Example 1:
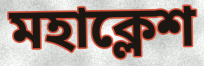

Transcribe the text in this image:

মহাক্লেশ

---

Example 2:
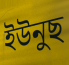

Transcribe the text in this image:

ইউনুছ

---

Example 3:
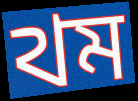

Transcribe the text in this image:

থম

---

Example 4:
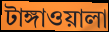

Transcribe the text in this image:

টাঙ্গাওয়ালা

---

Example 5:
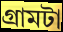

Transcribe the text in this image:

গ্রামটা